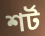
শর্ট